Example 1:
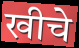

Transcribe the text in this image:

खीचे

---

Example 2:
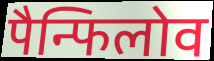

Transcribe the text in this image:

पैन्फिलोव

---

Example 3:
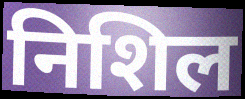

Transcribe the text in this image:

निशिल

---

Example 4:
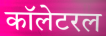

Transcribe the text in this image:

कॉलेटरल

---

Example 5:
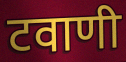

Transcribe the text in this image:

टवाणी